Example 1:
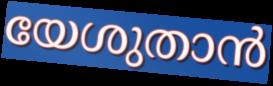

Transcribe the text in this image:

യേശുതാൻ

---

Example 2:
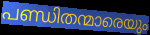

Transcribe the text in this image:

പണ്ഡിതന്മാരെയും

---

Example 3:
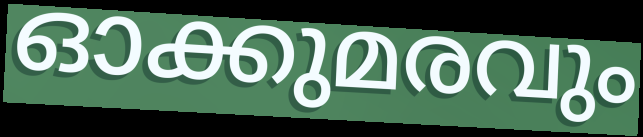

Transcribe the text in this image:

ഓക്കുമരവും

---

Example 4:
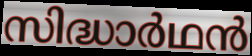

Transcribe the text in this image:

സിദ്ധാർഥൻ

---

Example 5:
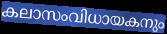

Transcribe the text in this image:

കലാസംവിധായകനും